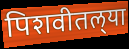
पिशवीतल्या